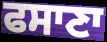
ਫਸਾਣਾ